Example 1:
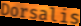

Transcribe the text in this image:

Dorsalis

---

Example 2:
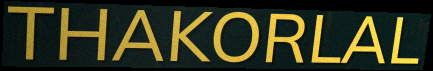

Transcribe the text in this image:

THAKORLAL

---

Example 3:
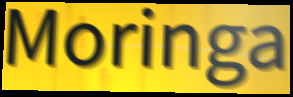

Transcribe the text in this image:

Moringa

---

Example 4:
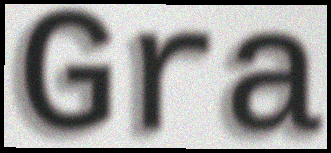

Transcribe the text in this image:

Gra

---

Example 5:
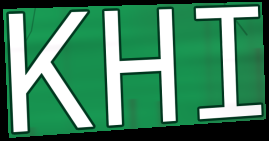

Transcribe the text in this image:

KHI